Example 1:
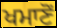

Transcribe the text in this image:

ਖਮਾਣੋਂ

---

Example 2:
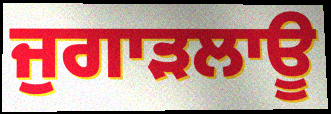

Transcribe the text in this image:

ਜੁਗਾੜਲਾਊ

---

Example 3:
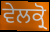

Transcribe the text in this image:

ਵੇਲਕ੍ਰੋ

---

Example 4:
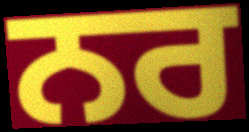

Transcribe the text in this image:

ਨਰ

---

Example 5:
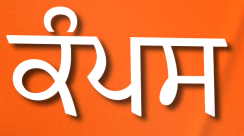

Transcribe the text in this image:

ਕੰਪਸ